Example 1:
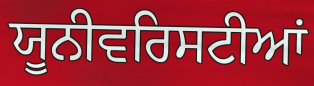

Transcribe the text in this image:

ਯੂਨੀਵਰਿਸਟੀਆਂ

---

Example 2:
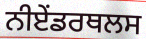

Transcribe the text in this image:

ਨੀਏਂਡਰਥਲਸ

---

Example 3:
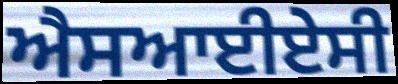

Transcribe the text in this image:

ਐਸਆਈਏਸੀ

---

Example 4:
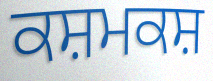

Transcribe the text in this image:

ਕਸ਼ਮਕਸ਼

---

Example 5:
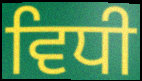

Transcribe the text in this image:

ਵਿਧੀ